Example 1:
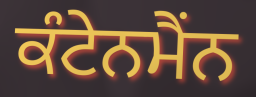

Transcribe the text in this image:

ਕੰਟੇਨਮੈਂਨ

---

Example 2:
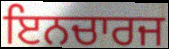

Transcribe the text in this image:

ਇਨਚਾਰਜ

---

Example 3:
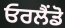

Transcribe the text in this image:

ਓਰਲੈਂਡੋ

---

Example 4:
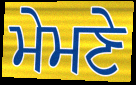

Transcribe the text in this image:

ਮੇਮਣੇ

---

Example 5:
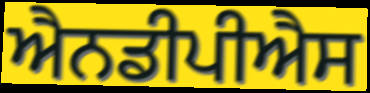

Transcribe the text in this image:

ਐਨਡੀਪੀਐਸ